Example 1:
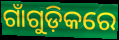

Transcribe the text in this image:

ଗାଁଗୁଡ଼ିକରେ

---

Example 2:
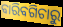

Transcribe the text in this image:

ବାରିବଗିଚାରୁ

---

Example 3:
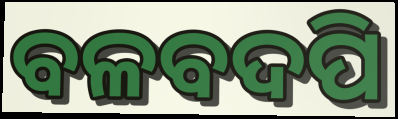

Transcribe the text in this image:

ବଳବଦପି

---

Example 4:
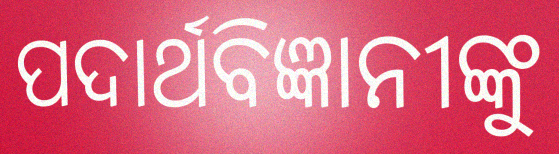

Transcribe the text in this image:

ପଦାର୍ଥବିଜ୍ଞାନୀଙ୍କୁ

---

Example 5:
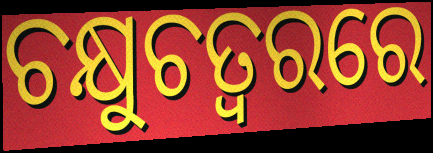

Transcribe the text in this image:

ଚକ୍ଷୁଚତ୍ୱରରେ